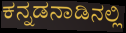
ಕನ್ನಡನಾಡಿನಲ್ಲಿ